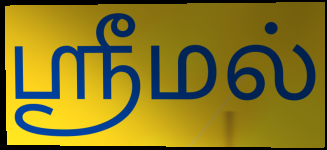
ஶ்ரீமல்